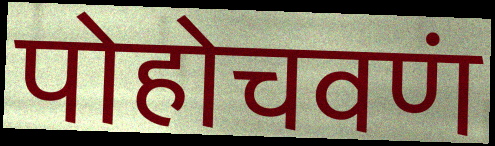
पोहोचवणं